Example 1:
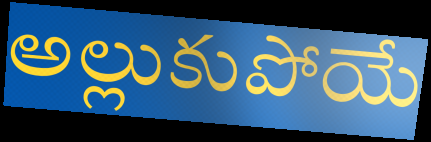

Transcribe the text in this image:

అల్లుకుపోయే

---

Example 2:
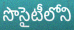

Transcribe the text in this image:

సొసైటీలోని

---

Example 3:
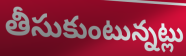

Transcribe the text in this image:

తీసుకుంటున్నట్లు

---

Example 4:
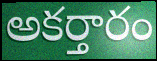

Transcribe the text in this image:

అకర్తారం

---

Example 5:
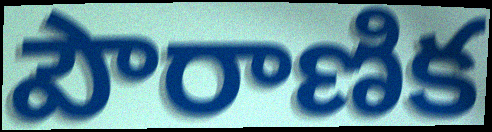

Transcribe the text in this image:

పౌరాణిక